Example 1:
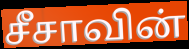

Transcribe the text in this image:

சீசாவின்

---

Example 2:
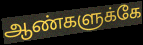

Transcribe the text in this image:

ஆண்களுக்கே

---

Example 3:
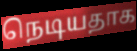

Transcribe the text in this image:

நெடியதாக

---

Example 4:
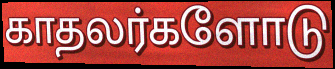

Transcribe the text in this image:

காதலர்களோடு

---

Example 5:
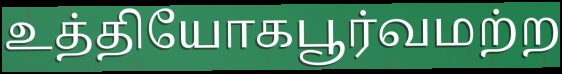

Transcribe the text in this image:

உத்தியோகபூர்வமற்ற